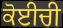
ਕੋਈਚੀ